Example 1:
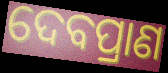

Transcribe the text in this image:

ଦେବପ୍ରାଣ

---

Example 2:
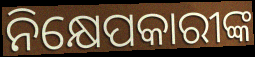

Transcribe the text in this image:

ନିକ୍ଷେପକାରୀଙ୍କ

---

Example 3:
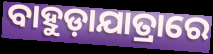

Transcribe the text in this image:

ବାହୁଡ଼ାଯାତ୍ରାରେ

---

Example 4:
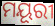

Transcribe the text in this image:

ମୟୂରୀ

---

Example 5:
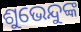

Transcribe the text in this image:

ଶୁଭେନ୍ଦୁଙ୍କ